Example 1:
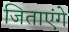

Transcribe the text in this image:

जिताएंगे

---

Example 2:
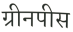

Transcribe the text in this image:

ग्रीनपीस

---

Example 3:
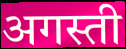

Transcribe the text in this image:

अगस्ती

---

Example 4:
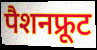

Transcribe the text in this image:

पैशनफ्रूट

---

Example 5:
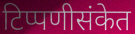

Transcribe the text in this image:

टिप्पणीसंकेत